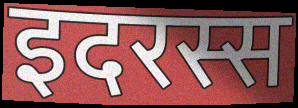
इदरस्स